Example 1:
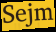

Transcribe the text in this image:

Sejm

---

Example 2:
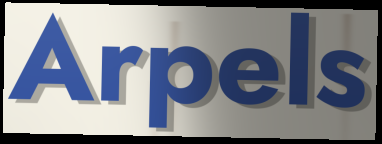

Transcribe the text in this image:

Arpels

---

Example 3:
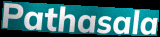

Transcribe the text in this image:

Pathasala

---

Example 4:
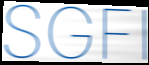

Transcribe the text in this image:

SGFI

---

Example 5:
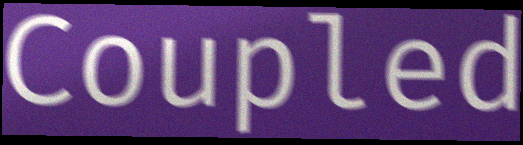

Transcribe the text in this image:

Coupled